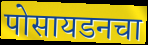
पोसायडनचा